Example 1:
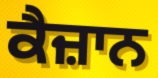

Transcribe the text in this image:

ਕੈਜ਼ਾਨ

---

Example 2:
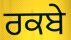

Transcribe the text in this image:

ਰਕਬੇ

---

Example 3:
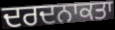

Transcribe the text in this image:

ਦਰਦਨਾਕਤਾ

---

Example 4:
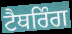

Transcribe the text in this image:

ਟੈਥਰਿੰਗ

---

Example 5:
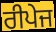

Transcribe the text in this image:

ਰੀਪੇਜ